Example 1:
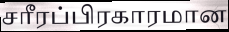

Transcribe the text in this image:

சரீரப்பிரகாரமான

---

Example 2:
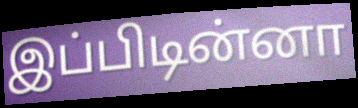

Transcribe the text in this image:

இப்பிடின்னா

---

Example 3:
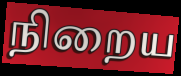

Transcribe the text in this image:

நிறைய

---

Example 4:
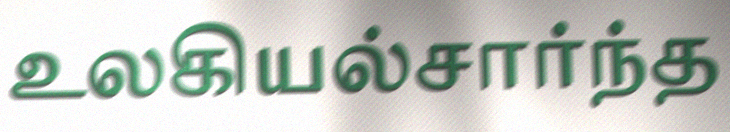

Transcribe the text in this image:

உலகியல்சார்ந்த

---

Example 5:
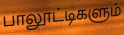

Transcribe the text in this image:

பாலூட்டிகளும்